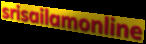
srisailamonline